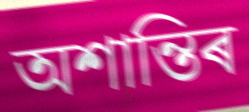
অশান্তিৰ